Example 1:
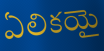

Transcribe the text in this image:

ఏలికయై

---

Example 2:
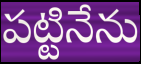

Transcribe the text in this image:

పట్టినేను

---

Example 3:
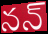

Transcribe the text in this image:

నన్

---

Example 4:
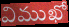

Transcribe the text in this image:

విముఖో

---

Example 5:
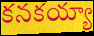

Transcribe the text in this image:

కనకయ్యా